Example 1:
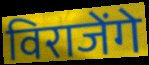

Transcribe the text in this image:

विराजेंगे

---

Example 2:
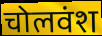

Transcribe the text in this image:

चोलवंश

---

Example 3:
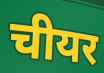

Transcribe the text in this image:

चीयर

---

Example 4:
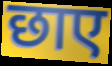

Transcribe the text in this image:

छाए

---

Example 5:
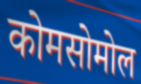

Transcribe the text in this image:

कोमसोमोल